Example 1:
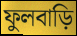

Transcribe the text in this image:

ফুলবাড়ি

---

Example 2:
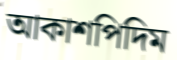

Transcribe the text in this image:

আকাশপিদিম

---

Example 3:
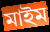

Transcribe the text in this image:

মাইম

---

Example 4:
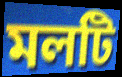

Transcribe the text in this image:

মলটি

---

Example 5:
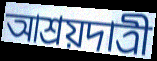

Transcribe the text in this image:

আশ্রয়দাত্রী